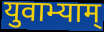
युवाभ्याम्